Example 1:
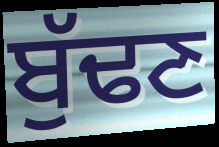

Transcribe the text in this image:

ਬੁੱਢਣ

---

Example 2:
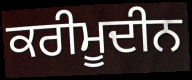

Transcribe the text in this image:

ਕਰੀਮੂਦੀਨ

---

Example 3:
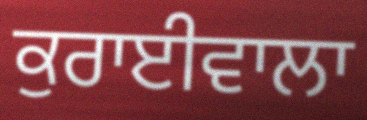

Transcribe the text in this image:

ਕੁਰਾਈਵਾਲਾ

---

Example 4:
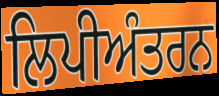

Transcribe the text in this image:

ਲਿਪੀਅੰਤਰਨ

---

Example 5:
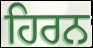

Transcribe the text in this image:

ਹਿਰਨ